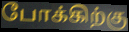
போக்கிற்கு